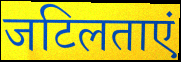
जटिलताएं